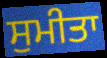
ਸੁਮੀਤਾ